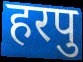
हरपु